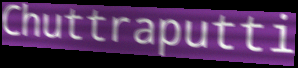
Chuttraputti